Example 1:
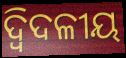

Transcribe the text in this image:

ଦ୍ବିଦଳୀୟ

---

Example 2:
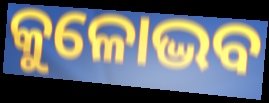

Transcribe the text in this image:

କୁଳୋଦ୍ଭବ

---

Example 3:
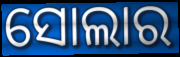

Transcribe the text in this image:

ସୋଲାର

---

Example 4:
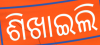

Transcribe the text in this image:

ଶିଖାଇଲି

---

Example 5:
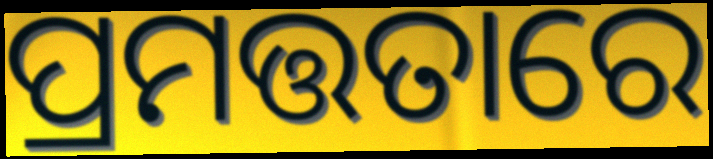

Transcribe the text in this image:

ପ୍ରମତ୍ତତାରେ